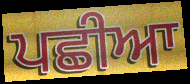
ਪਛੀਆ